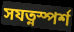
সযত্নস্পর্শ